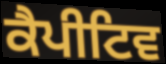
ਕੈਪੀਟਿਵ